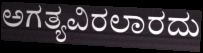
ಅಗತ್ಯವಿರಲಾರದು